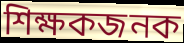
শিক্ষকজনক